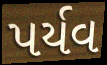
પર્યવ